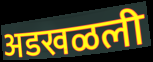
अडखळली